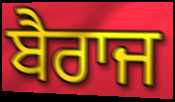
ਬੈਰਾਜ